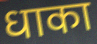
धाका